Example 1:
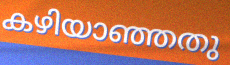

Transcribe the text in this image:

കഴിയാഞ്ഞതു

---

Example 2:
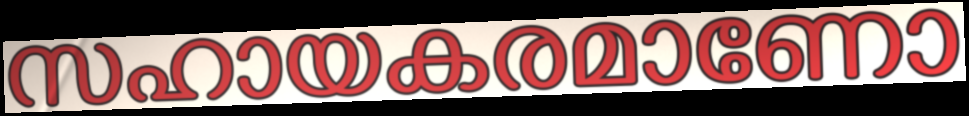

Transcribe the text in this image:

സഹായകരമാണോ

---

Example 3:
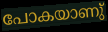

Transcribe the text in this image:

പോകയാണു്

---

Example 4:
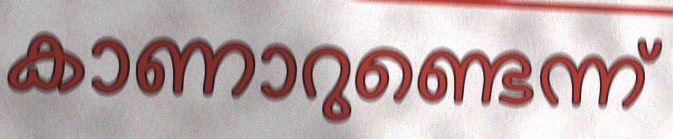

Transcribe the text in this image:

കാണാറുണ്ടെന്ന്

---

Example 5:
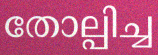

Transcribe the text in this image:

തോല്പിച്ച